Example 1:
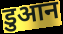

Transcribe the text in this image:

डुआन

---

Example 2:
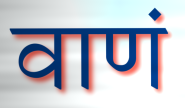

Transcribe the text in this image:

वाणं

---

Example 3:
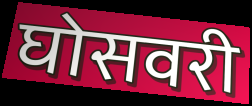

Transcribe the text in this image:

घोसवरी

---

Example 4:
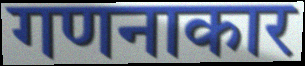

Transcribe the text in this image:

गणनाकार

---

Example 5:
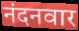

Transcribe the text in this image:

नंदनवार